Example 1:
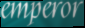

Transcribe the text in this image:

emperor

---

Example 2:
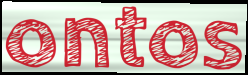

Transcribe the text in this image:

ontos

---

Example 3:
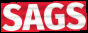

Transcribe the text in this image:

SAGS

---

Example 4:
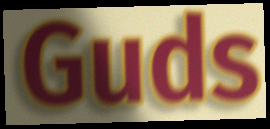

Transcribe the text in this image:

Guds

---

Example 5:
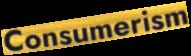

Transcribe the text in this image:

Consumerism